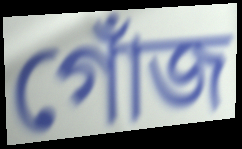
গোঁজ